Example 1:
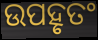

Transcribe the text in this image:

ଉପହୃତଂ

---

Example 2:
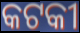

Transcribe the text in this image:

କଟକୀ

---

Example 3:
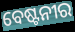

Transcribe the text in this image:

ବେଷ୍ଟନୀର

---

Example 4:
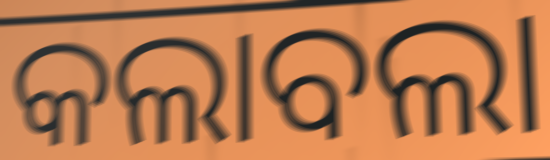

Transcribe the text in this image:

କଲାବଲା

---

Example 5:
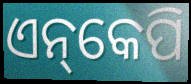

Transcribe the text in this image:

ଏନ୍‌କେପି